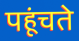
पहूंचते